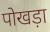
पोखड़ा